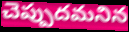
చెప్పుదమనిన